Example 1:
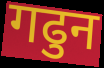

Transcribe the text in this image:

गढुन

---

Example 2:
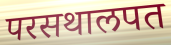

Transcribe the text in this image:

परसथालपत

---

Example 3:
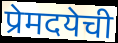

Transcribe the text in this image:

प्रेमदयेची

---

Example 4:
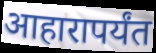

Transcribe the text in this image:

आहारापर्यंत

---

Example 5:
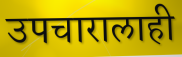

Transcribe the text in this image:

उपचारालाही